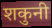
शकुनी